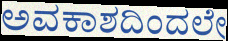
ಅವಕಾಶದಿಂದಲೇ